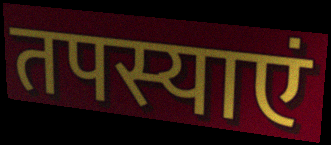
तपस्याएं